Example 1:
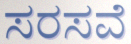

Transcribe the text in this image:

ಸರಸವೆ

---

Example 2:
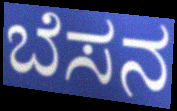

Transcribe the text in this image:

ಬೆಸನ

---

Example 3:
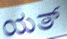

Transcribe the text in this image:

ಯತ್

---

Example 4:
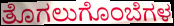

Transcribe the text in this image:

ತೊಗಲುಗೊಂಬೆಗಳ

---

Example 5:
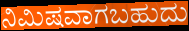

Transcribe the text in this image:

ನಿಮಿಷವಾಗಬಹುದು